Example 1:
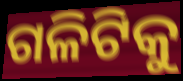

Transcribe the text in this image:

ଗଳିଟିକୁ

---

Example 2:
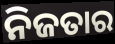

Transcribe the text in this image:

ନିଜତାର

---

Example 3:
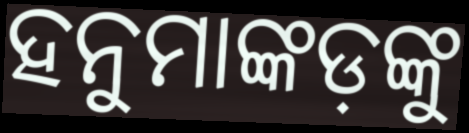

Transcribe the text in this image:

ହନୁମାଙ୍କଡ଼ଙ୍କୁ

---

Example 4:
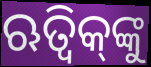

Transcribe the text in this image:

ଋତ୍ୱିକ୍‌ଙ୍କୁ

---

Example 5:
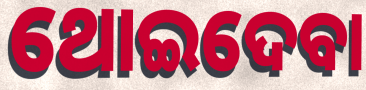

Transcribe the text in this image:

ଥୋଇଦେବା